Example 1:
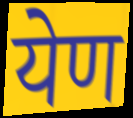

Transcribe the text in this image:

येण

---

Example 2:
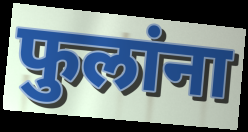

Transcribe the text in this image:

फुलांना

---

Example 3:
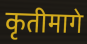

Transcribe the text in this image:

कृतीमागे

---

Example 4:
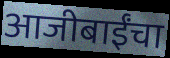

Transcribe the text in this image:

आजीबाईंचा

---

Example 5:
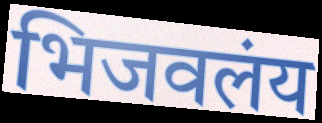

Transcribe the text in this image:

भिजवलंय